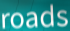
roads